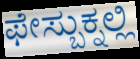
ಫೇಸ್ಬುಕ್ನಲ್ಲಿ